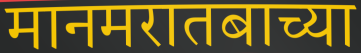
मानमरातबाच्या